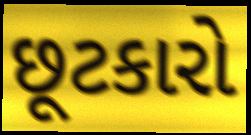
છૂટકારો